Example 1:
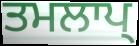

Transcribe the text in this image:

ਤਮਲਾਪ੍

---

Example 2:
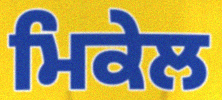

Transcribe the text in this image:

ਮਿਕੇਲ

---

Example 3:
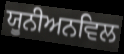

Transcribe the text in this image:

ਯੂਨੀਅਨਵਿਲ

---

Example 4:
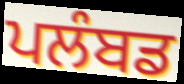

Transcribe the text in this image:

ਪਲੰਬਡ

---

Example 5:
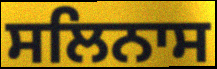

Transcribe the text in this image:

ਸਲਿਨਾਸ